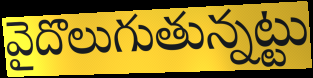
వైదొలుగుతున్నట్టు